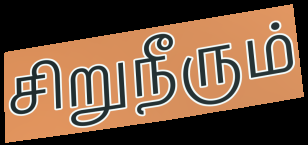
சிறுநீரும்